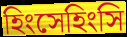
হিংসেহিংসি